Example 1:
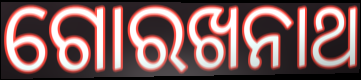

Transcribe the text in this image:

ଗୋରଖନାଥ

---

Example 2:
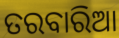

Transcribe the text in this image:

ତରବାରିଆ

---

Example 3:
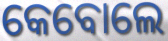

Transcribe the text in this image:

କେବୋଲେ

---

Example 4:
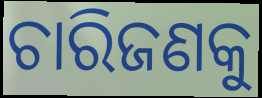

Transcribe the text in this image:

ଚାରିଜଣକୁ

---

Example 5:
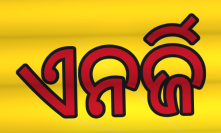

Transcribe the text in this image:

ଏନର୍ଜି